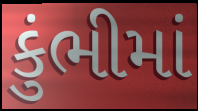
કુંભીમાં